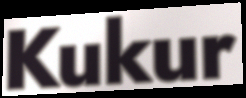
Kukur